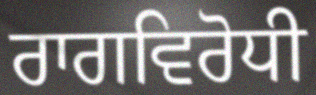
ਰਾਗਵਿਰੋਧੀ